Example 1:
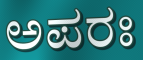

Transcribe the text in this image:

ಅಪರಃ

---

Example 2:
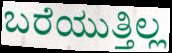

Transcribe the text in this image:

ಬರೆಯುತ್ತಿಲ್ಲ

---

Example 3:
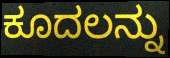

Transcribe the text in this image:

ಕೂದಲನ್ನು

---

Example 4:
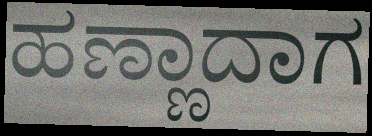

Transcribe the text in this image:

ಹಣ್ಣಾದಾಗ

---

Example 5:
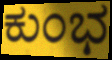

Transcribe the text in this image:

ಕುಂಭ